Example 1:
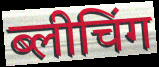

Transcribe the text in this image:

ब्‍लीचिंग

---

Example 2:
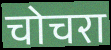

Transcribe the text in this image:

चोचरा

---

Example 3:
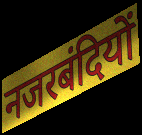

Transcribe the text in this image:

नजरबंदियों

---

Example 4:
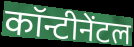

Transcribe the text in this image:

कॉन्टीनेंटल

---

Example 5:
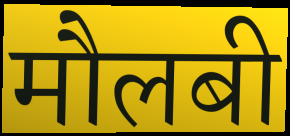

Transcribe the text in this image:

मौलबी